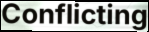
Conflicting